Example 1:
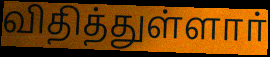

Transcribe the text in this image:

விதித்துள்ளார்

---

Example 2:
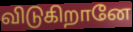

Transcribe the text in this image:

விடுகிறானே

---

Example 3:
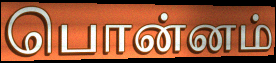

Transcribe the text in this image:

பொன்னம்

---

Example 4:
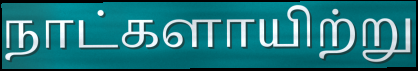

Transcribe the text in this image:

நாட்களாயிற்று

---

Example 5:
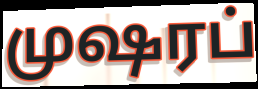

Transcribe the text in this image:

முஷரப்